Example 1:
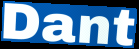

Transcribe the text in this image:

Dant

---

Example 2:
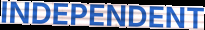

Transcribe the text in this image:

INDEPENDENT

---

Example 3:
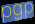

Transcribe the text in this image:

pgp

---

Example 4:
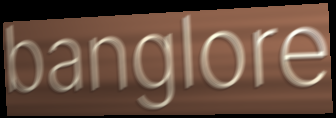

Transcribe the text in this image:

banglore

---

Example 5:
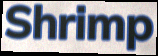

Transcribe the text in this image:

Shrimp